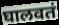
घालवतं